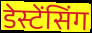
डेस्टेंसिंग